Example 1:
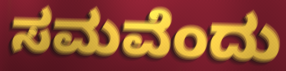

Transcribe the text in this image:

ಸಮವೆಂದು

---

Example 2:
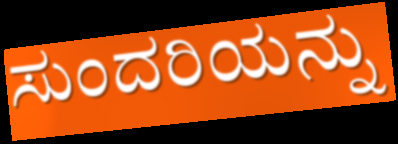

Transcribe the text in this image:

ಸುಂದರಿಯನ್ನು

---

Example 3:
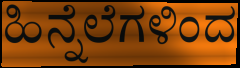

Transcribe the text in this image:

ಹಿನ್ನೆಲೆಗಳಿಂದ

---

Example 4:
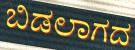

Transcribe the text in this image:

ಬಿಡಲಾಗದ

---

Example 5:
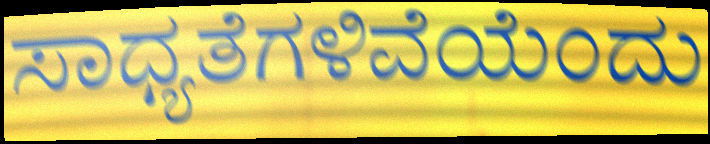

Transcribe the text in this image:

ಸಾಧ್ಯತೆಗಳಿವೆಯೆಂದು